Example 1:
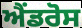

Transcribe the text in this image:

ਐਂਡਰੋਸ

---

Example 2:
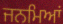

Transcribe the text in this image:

ਜਨਮਿਆਂ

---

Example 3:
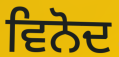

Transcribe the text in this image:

ਵਿਨੋਦ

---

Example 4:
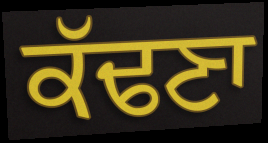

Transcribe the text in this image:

ਕੱਢਣਾ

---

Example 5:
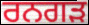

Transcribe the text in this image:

ਰਨਗੜ